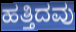
ಹತ್ತಿದವು